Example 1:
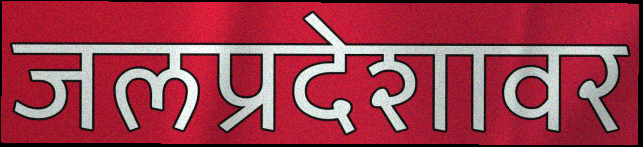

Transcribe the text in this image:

जलप्रदेशावर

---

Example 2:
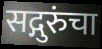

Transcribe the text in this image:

सद्गुरुंचा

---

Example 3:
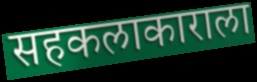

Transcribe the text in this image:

सहकलाकाराला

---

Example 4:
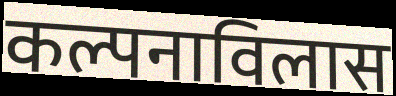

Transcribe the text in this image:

कल्पनाविलास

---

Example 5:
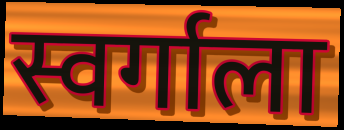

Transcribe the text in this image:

स्वर्गाला